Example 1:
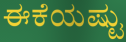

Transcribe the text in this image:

ಈಕೆಯಷ್ಟು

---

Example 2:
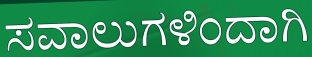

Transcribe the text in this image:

ಸವಾಲುಗಳಿಂದಾಗಿ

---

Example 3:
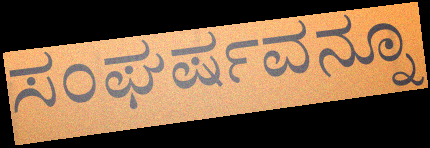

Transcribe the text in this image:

ಸಂಘರ್ಷವನ್ನೂ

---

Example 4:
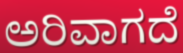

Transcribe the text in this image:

ಅರಿವಾಗದೆ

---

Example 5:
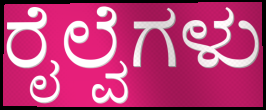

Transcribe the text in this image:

ರೈಲ್ವೆಗಳು